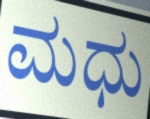
ಮಧು